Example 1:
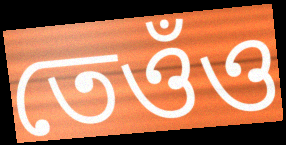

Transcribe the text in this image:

তেওঁও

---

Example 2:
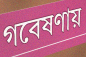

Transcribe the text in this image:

গবেষণায়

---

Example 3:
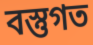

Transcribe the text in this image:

বস্তুগত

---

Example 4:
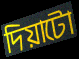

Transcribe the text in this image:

দিয়াটো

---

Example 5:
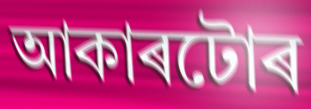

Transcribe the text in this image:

আকাৰটোৰ